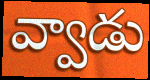
వ్వాడు